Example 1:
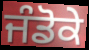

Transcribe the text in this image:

ਜੰਡੋਕੇ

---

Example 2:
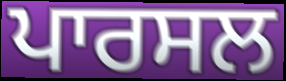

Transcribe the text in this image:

ਪਾਰਸਲ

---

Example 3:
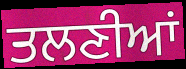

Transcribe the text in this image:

ਤਲਣੀਆਂ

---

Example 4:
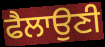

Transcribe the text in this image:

ਫੈਲਾਉਣੀ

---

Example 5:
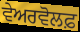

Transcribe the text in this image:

ਵੇਅਰਵੋਲਫ਼